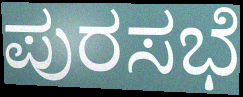
ಪುರಸಭೆ